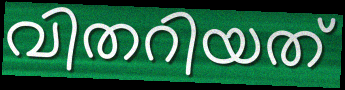
വിതറിയത്